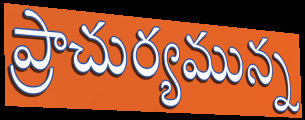
ప్రాచుర్యమున్న